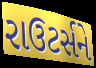
રાઉટર્સને